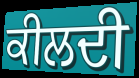
ਕੀਲਦੀ